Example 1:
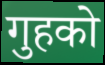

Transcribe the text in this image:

गुहको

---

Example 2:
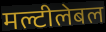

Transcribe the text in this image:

मल्टीलेबल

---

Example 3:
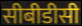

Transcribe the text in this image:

सीबीडीसी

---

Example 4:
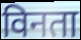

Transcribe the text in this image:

विनता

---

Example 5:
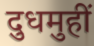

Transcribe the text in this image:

दुधमुहीं